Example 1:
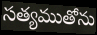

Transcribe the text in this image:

సత్యముతోను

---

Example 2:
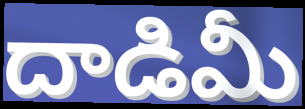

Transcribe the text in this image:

దాడిమీ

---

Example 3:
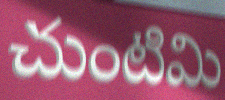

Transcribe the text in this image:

చుంటిమి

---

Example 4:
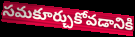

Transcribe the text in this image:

సమకూర్చుకోవడానికి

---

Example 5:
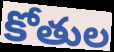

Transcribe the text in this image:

కోతుల